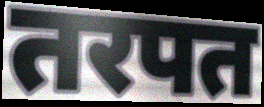
तरपत